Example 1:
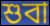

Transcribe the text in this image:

শুবা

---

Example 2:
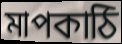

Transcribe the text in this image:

মাপকাঠি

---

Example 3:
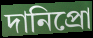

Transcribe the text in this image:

দানিপ্রো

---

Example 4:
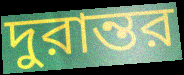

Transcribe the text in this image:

দুরান্তর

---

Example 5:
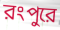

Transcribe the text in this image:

রংপুরে